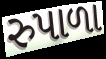
રુપાળા